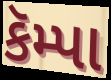
કૅમ્પા